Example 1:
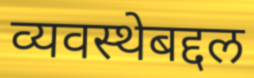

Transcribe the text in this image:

व्यवस्थेबद्दल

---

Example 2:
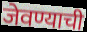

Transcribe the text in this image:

जेवण्याची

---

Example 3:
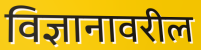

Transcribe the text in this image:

विज्ञानावरील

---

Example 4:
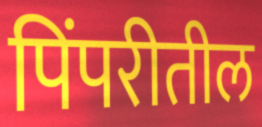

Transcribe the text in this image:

पिंपरीतील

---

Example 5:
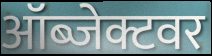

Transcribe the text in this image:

ऑब्जेक्टवर